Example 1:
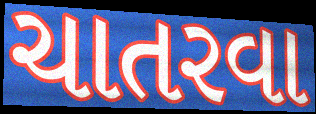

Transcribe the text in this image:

ચાતરવા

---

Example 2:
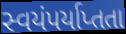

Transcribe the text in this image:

સ્વયંપર્યાપ્તતા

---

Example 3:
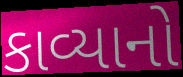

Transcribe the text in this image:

કાવ્યાનો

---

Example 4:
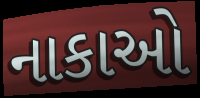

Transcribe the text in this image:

નાકાઓ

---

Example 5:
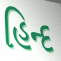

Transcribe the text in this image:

હિન્દ